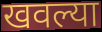
खवल्या